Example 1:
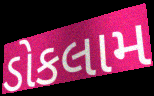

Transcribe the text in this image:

ડોકલામ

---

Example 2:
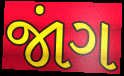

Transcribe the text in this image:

જાંગ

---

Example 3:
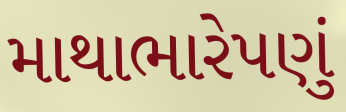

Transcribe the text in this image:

માથાભારેપણું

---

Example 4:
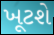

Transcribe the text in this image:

ખૂટશે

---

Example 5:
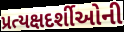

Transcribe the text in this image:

પ્રત્યક્ષદર્શીઓની